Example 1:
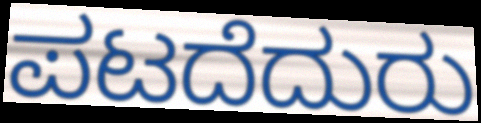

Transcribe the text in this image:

ಪಟದೆದುರು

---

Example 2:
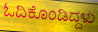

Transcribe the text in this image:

ಓದಿಕೊಂಡಿದ್ದಳು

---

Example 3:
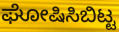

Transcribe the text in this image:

ಘೋಷಿಸಿಬಿಟ್ಟ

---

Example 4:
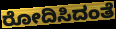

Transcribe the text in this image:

ರೋದಿಸಿದಂತೆ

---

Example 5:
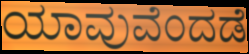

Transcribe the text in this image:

ಯಾವುವೆಂದಡೆ